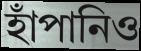
হাঁপানিও